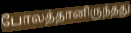
போலத்தானிருந்தது